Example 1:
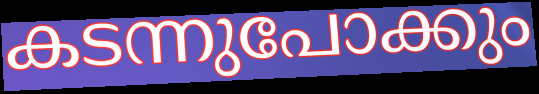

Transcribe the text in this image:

കടന്നുപോക്കും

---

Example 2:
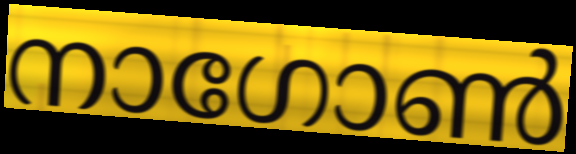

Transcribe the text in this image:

നാഗോൺ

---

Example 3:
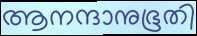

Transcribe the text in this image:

ആനന്ദാനുഭൂതി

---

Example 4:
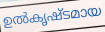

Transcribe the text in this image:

ഉൽകൃഷ്ടമായ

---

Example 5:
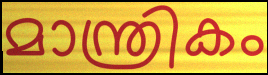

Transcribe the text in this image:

മാന്ത്രികം